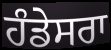
ਹੰਡੇਸਰਾ